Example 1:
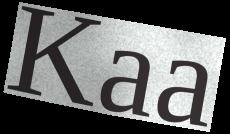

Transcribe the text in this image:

Kaa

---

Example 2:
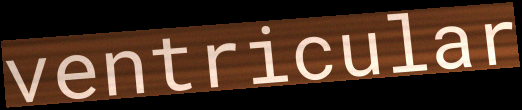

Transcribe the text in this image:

ventricular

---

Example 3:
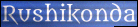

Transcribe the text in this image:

Rushikonda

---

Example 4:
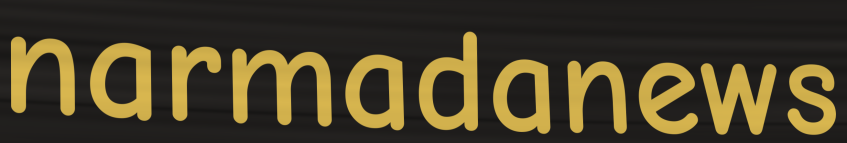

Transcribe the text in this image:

narmadanews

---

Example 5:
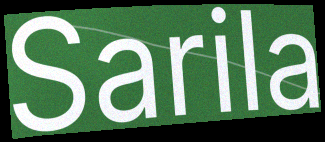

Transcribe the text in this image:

Sarila